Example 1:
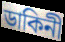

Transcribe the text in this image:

ডাকিনী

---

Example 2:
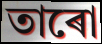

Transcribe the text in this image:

তাৰো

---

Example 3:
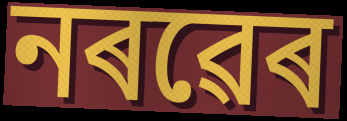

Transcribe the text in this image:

নৰৱেৰ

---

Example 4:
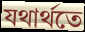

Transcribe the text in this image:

যথাৰ্থতে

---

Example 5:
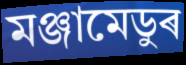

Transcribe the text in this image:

মঞ্জামেডুৰ